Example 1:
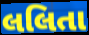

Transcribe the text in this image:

લલિતા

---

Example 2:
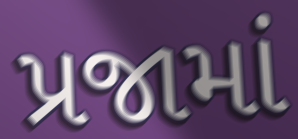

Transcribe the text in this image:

પ્રજામાં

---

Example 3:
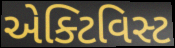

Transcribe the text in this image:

એક્ટિવિસ્ટ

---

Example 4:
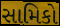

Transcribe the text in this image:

સામિકો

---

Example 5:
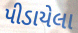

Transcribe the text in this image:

પીડાયેલા